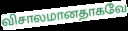
விசாலமானதாகவே